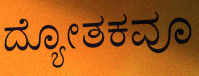
ದ್ಯೋತಕವೂ